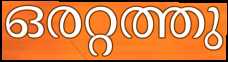
ഒരറ്റത്തു